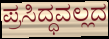
ಪ್ರಸಿದ್ಧವಲ್ಲದ